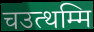
चउत्थम्मि